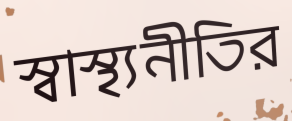
স্বাস্থ্যনীতির